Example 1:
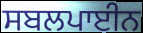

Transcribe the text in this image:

ਸਬਲਪਾਈਨ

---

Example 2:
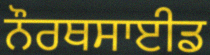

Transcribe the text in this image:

ਨੌਰਥਸਾਈਡ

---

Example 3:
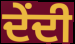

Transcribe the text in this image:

ਦੇਂਦੀ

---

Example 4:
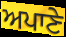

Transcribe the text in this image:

ਅਪਾਣੇ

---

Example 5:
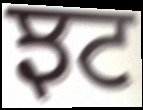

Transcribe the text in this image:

ਝਟ